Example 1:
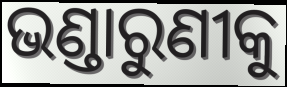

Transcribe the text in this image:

ଭଣ୍ଡାରୁଣୀକୁ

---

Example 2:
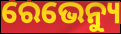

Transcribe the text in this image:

ରେଭେନ୍ୟୁ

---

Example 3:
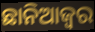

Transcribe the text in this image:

ଛାନିଆଜ୍ୱର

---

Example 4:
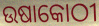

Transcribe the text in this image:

ଉଷାକୋଠୀ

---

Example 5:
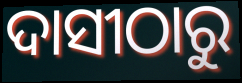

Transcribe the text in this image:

ଦାସୀଠାରୁ